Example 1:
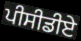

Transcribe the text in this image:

ਪੀਸੀਡੀਏ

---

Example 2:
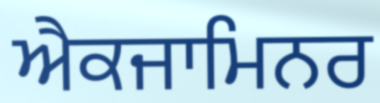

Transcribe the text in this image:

ਐਕਜਾਮਿਨਰ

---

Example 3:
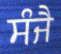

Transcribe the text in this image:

ਸੰਜੈ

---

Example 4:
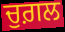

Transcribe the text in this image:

ਚੁਗ਼ਲ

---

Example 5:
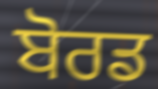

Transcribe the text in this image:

ਬੋਰਡ